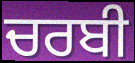
ਚਰਬੀ